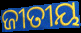
ଜୀତୀୟ